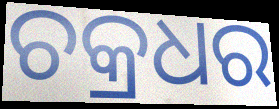
ଚକ୍ରଧର